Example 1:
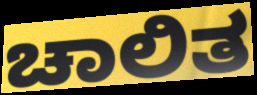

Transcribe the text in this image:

ಚಾಲಿತ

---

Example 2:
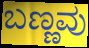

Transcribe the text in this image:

ಬಣ್ಣವು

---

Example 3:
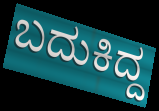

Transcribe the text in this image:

ಬದುಕಿದ್ದ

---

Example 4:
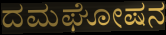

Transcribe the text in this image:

ದಮಘೋಷನ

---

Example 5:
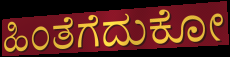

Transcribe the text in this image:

ಹಿಂತೆಗೆದುಕೋ